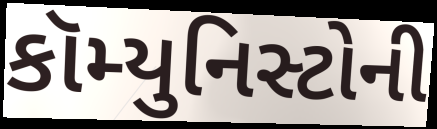
કૉમ્યુનિસ્ટોની